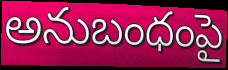
అనుబంధంపై